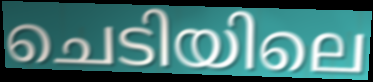
ചെടിയിലെ